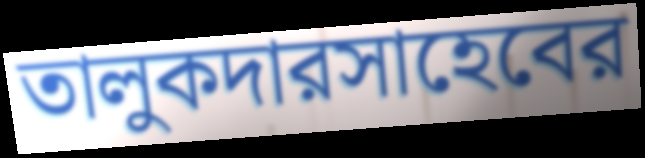
তালুকদারসাহেবের